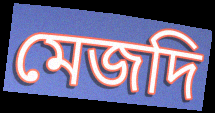
মেজদি